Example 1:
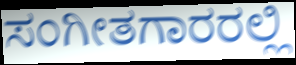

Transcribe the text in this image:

ಸಂಗೀತಗಾರರಲ್ಲಿ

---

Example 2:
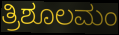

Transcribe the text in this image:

ತ್ರಿಶೂಲಮಂ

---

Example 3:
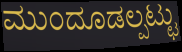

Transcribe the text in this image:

ಮುಂದೂಡಲ್ಪಟ್ಟು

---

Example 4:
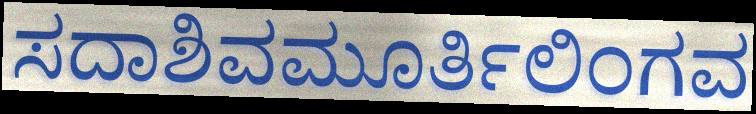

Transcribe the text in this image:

ಸದಾಶಿವಮೂರ್ತಿಲಿಂಗವ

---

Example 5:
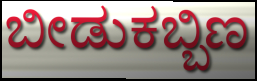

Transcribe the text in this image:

ಬೀಡುಕಬ್ಬಿಣ